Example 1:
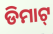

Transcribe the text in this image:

ଡିମାଟ୍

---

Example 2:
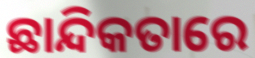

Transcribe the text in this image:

ଛାନ୍ଦିକତାରେ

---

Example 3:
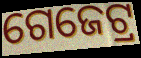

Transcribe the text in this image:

ଗେଜେଟ୍ର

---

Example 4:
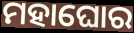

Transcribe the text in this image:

ମହାଘୋର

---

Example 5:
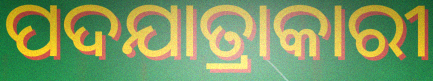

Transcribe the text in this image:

ପଦଯାତ୍ରାକାରୀ